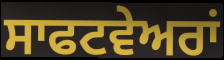
ਸਾਫਟਵੇਅਰਾਂ